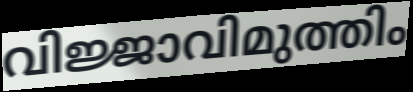
വിജ്ജാവിമുത്തിം